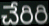
చేరిరి